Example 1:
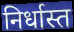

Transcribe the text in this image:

निर्धास्त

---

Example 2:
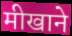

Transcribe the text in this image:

मीखाने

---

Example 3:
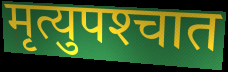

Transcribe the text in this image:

मृत्युपश्‍चात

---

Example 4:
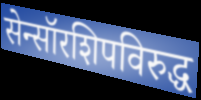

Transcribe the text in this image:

सेन्सॉरशिपविरुद्ध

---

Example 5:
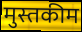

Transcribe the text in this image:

मुस्तकीम